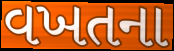
વખતના